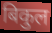
बिकुल